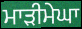
ਮਾੜੀਮੇਘਾ